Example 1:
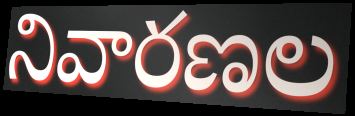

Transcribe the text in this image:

నివారణల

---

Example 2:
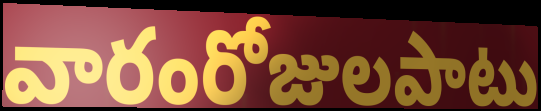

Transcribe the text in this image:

వారంరోజులపాటు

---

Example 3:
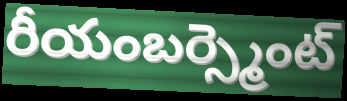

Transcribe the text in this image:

రీయంబర్స్మెంట్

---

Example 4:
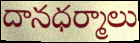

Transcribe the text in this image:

దానధర్మాలు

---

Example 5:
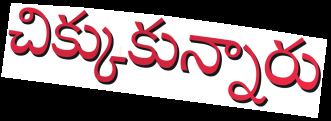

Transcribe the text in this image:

చిక్కుకున్నారు